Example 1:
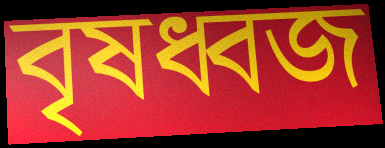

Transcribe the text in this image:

বৃষধ্বজ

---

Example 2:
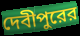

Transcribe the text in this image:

দেবীপুরের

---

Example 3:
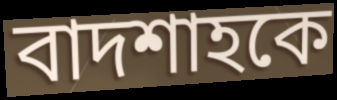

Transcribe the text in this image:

বাদশাহকে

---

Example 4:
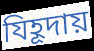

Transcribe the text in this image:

যিহূদায়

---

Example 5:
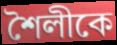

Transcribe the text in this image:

শৈলীকে